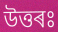
উত্তৰঃ